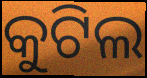
କୁଟିଲ